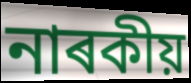
নাৰকীয়